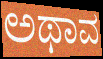
ಅಥಾವ